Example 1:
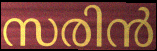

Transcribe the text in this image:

സരിൻ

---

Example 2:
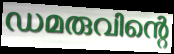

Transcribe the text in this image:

ഡമരുവിന്റെ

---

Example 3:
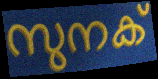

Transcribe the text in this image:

സുനക്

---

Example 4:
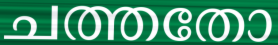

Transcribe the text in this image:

ചത്തതോ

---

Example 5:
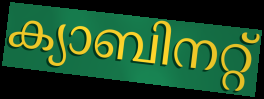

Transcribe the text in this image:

ക്യാബിനറ്റ്